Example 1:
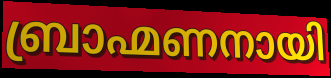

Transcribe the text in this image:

ബ്രാഹ്മണനായി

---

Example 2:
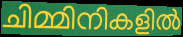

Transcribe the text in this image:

ചിമ്മിനികളിൽ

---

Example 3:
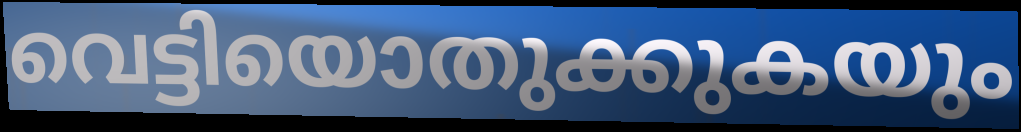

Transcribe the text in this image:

വെട്ടിയൊതുക്കുകയും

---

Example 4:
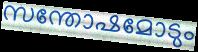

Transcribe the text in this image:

സന്തോഷമോടും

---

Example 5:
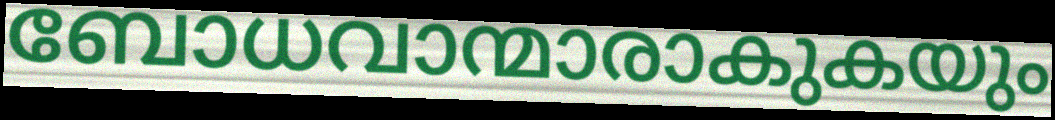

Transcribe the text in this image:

ബോധവാന്മാരാകുകയും